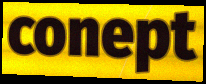
conept